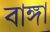
বাঙ্গা